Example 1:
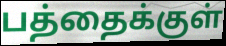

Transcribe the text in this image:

பத்தைக்குள்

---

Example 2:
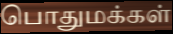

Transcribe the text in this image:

பொதுமக்கள்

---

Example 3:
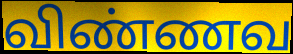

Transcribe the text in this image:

விண்ணவ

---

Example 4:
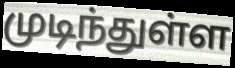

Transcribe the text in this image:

முடிந்துள்ள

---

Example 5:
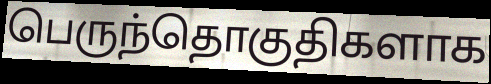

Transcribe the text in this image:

பெருந்தொகுதிகளாக